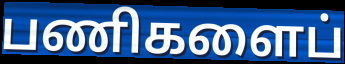
பணிகளைப்